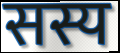
सस्य